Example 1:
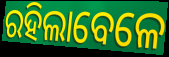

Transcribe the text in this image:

ରହିଲାବେଳେ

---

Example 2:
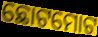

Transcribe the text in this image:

ଛୋଟମୋଟ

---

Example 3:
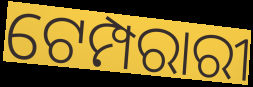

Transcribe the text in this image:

ଟେମ୍ପରାରୀ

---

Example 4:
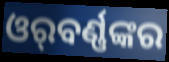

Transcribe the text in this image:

ଓର୍‌ବର୍ଣ୍ଣଙ୍କର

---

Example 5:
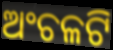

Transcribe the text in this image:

ଅଂଚଳଟି